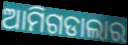
ଆମିଗଡାଲାର